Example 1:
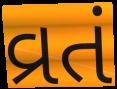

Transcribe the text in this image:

વ્રતં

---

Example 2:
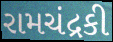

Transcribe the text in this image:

રામચંદ્રકી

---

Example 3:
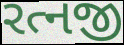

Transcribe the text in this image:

રત્નજી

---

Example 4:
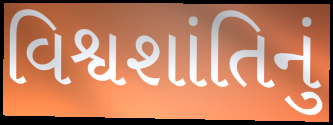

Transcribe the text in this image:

વિશ્વશાંતિનું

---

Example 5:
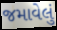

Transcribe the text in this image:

જમાવેલું